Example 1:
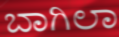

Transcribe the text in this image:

ಬಾಗಿಲಾ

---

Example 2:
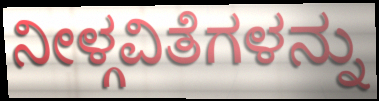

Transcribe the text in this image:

ನೀಳ್ಗವಿತೆಗಳನ್ನು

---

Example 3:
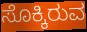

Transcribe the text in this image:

ಸೊಕ್ಕಿರುವ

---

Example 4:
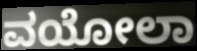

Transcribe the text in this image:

ವಯೋಲಾ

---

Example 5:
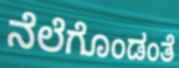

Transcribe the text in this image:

ನೆಲೆಗೊಂಡಂತೆ